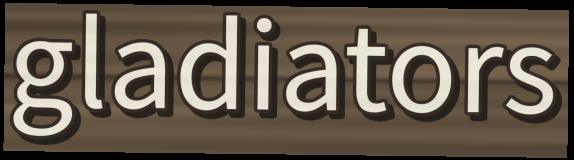
gladiators